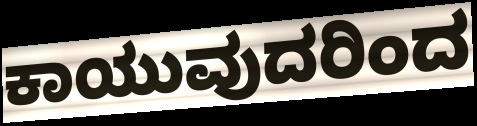
ಕಾಯುವುದರಿಂದ